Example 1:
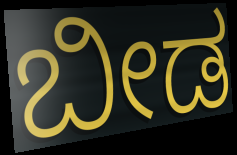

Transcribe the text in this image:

ಬೀಡ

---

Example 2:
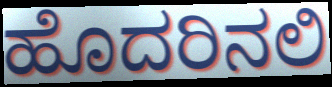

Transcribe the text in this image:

ಹೊದರಿನಲಿ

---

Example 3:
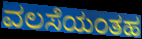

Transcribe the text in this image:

ವಲಸೆಯಂತಹ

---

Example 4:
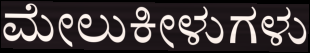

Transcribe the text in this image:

ಮೇಲುಕೀಳುಗಳು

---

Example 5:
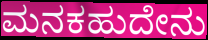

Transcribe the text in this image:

ಮನಕಹುದೇನು